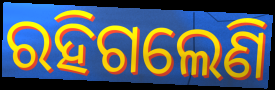
ରହିଗଲେଣି